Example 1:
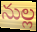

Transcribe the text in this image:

నుల్ల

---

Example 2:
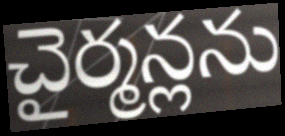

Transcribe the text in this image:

చైర్మన్లను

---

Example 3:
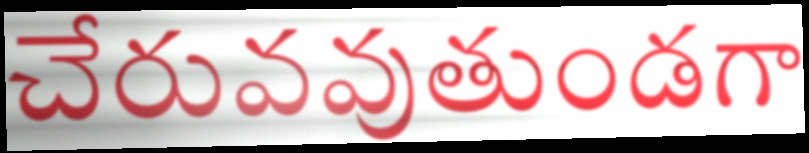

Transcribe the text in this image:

చేరువవుతుండగా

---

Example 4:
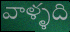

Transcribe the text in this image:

వాళ్ళది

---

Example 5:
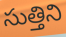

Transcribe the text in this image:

సుత్తిని